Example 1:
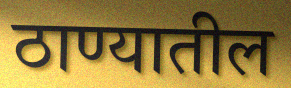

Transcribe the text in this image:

ठाण्यातील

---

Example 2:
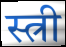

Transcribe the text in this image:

स्त्री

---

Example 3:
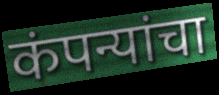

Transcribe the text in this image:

कंपन्यांचा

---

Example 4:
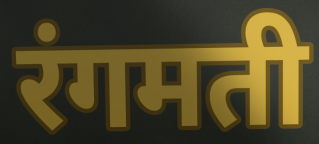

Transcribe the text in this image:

रंगमती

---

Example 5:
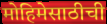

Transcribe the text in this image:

मोहिमेसाठीची